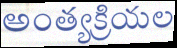
అంత్యక్రియల